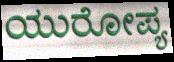
ಯುರೋಪ್ಯ